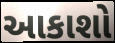
આકાશો